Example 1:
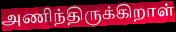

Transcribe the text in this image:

அணிந்திருக்கிறாள்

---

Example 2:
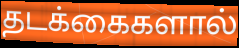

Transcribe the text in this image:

தடக்கைகளால்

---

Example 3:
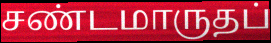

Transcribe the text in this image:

சண்டமாருதப்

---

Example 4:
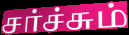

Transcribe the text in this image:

சர்ச்சும்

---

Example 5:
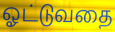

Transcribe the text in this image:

ஓட்டுவதை